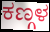
ಕಣ್ಗಳ